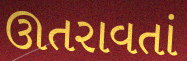
ઊતરાવતાં